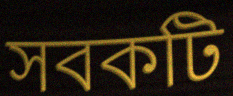
সবকটি